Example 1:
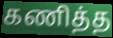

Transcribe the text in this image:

கணித்த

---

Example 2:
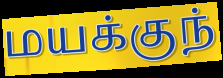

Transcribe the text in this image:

மயக்குந்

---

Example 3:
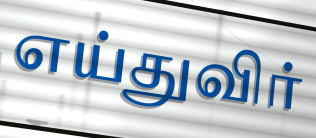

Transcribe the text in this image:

எய்துவிர்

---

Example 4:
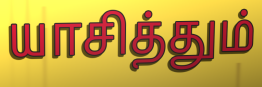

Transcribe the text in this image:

யாசித்தும்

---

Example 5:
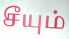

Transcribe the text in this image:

சீயும்